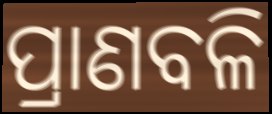
ପ୍ରାଣବଳି